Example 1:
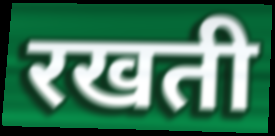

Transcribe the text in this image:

रखती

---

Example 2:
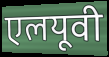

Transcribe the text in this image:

एलयूवी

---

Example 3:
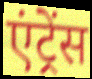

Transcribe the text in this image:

एंट्रेंस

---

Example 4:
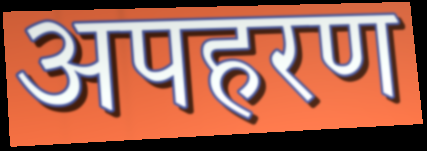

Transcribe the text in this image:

अपहरण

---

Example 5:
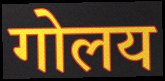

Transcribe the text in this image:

गोलय